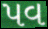
પવ